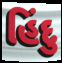
હિંદુ